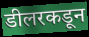
डीलरकडून